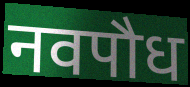
नवपौध